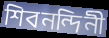
শিবনন্দিনী